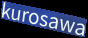
kurosawa